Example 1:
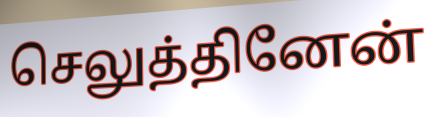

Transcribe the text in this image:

செலுத்தினேன்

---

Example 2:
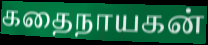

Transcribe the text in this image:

கதைநாயகன்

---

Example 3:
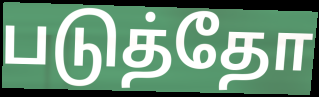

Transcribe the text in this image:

படுத்தோ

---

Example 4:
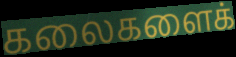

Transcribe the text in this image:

கலைகளைக்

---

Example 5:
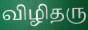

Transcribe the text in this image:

விழிதரு